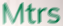
Mtrs